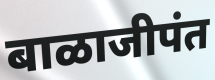
बाळाजीपंत